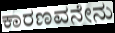
ಕಾರಣವನೇನು